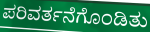
ಪರಿವರ್ತನೆಗೊಂಡಿತು